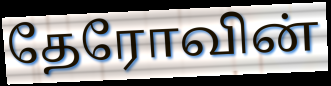
தேரோவின்